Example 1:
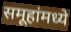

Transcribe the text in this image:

समूहांमध्ये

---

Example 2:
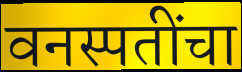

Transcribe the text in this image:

वनस्पतींचा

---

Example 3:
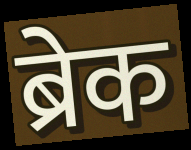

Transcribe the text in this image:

ब्रेक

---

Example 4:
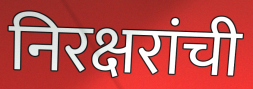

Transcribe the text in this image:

निरक्षरांची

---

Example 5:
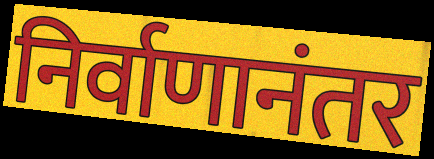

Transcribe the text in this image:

निर्वाणानंतर